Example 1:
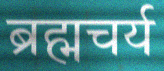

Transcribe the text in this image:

ब्रह्मचर्य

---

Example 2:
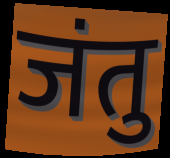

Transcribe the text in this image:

जंतु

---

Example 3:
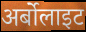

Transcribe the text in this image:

अर्बोलाइट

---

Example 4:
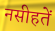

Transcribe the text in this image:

नसीहतें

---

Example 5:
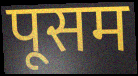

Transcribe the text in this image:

पूसम